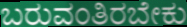
ಬರುವಂತಿರಬೇಕು